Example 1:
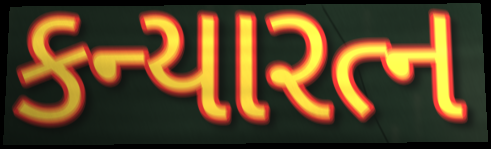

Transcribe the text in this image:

કન્યારત્ન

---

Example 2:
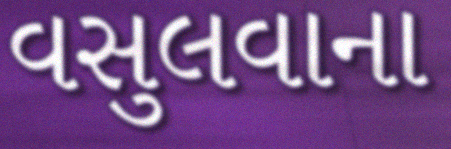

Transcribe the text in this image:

વસુલવાના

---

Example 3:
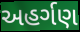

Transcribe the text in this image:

અહર્ગણ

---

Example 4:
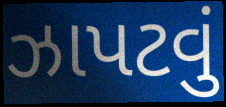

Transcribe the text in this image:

ઝાપટવું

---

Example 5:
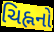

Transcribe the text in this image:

ચિહ્નનો